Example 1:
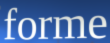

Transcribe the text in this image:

forme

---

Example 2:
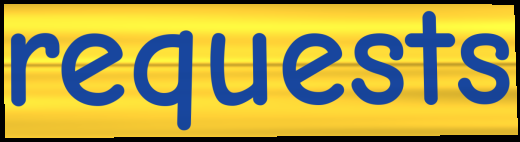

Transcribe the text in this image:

requests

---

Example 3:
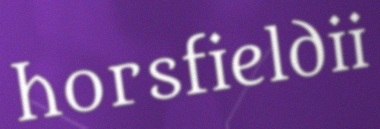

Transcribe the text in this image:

horsfieldii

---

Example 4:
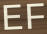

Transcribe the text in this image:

EF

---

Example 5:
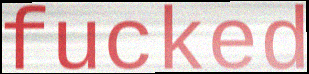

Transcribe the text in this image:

fucked